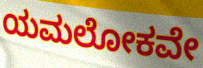
ಯಮಲೋಕವೇ